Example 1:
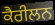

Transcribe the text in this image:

ਕੈਰੀਲਨ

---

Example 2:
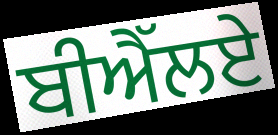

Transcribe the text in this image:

ਬੀਐੱਲਏ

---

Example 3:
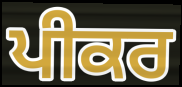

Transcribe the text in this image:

ਪੀਕਰ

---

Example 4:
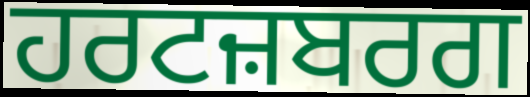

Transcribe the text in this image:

ਹਰਟਜ਼ਬਰਗ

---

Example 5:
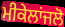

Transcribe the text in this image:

ਮੀਕੇਲਾਂਜਲੋ